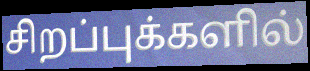
சிறப்புக்களில்